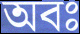
অবঃ